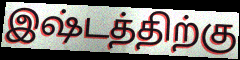
இஷ்டத்திற்கு